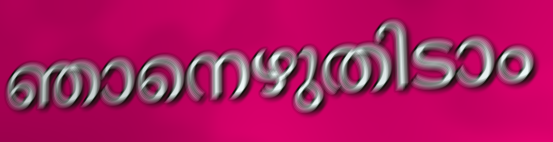
ഞാനെഴുതിടാം